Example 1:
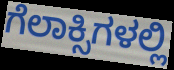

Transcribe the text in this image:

ಗೆಲಾಕ್ಸಿಗಳಲ್ಲಿ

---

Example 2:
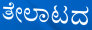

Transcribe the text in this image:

ತೇಲಾಟದ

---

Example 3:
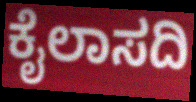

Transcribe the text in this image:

ಕೈಲಾಸದಿ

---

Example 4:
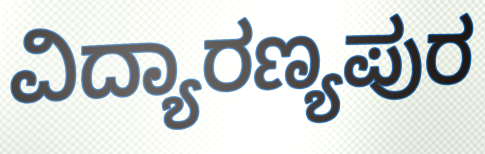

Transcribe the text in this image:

ವಿದ್ಯಾರಣ್ಯಪುರ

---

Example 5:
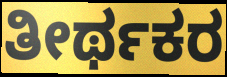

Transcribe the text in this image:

ತೀರ್ಥಕರ